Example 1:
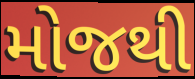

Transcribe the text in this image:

મોજથી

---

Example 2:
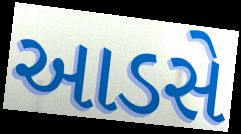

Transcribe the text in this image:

આડસે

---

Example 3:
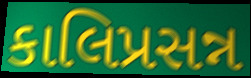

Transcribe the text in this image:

કાલિપ્રસન્ન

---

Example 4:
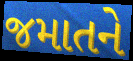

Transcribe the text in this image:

જમાતને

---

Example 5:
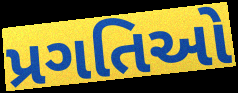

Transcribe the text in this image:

પ્રગતિઓ